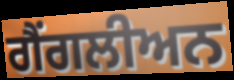
ਗੈਂਗਲੀਅਨ